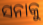
ସନାକୁ